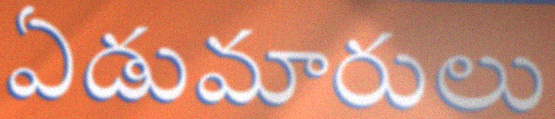
ఏడుమారులు